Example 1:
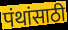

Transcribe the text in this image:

पंथांसाठी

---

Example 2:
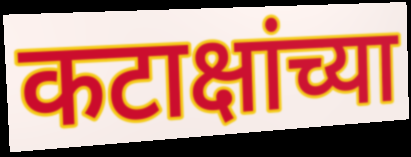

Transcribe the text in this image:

कटाक्षांच्या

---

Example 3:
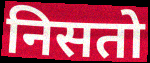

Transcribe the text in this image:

निसतो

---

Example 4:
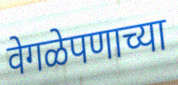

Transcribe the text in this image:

वेगळेपणाच्या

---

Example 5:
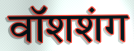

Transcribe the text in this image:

वॉशशंग